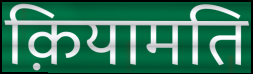
क़ियामति